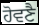
ਹੋਵਣੈ